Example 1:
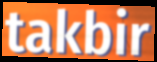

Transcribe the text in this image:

takbir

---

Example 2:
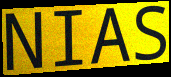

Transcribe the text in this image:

NIAS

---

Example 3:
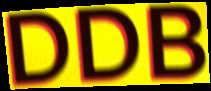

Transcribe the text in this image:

DDB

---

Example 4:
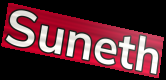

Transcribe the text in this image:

Suneth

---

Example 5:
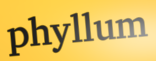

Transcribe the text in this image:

phyllum